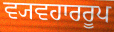
ਵ੍ਯਵਹਾਰਰੂਪ